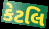
કેટલિ